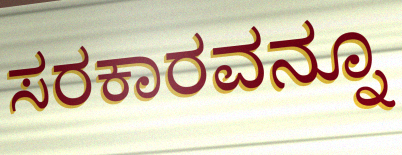
ಸರಕಾರವನ್ನೂ